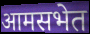
आमसभेत